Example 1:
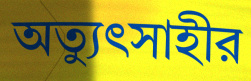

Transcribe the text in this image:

অত্যুৎসাহীর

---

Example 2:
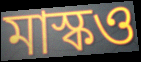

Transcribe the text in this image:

মাস্কও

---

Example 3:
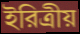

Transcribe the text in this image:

ইরিত্রীয়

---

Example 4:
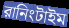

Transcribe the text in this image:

রানিংটাইম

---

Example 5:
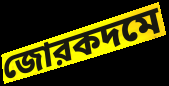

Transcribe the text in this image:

জোরকদমে